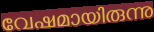
വേഷമായിരുന്നു